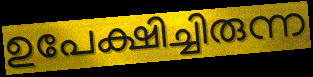
ഉപേക്ഷിച്ചിരുന്ന